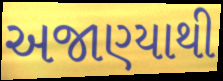
અજાણ્યાથી